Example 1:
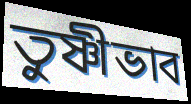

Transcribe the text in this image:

তুষ্ণীভাব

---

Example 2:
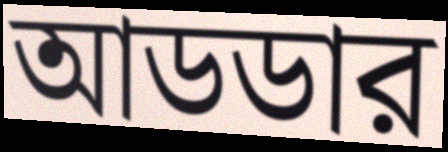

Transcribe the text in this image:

আডডার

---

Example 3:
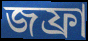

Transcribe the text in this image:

জফ্রা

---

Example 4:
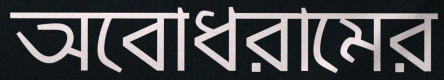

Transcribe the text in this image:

অবোধরামের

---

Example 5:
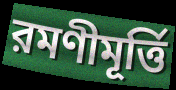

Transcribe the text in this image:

রমণীমূর্ত্তি